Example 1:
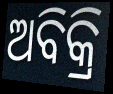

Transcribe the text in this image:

ଅବିକ୍ରି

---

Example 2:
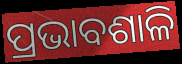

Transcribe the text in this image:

ପ୍ରଭାବଶାଳି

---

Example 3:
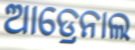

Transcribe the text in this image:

ଆଡ୍ରେନାଲ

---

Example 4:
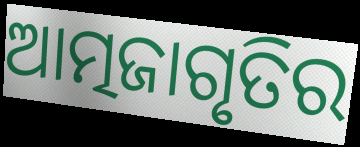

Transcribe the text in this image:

ଆତ୍ମଜାଗୃତିର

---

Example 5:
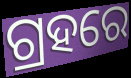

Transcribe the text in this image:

ଗ୍ରହରେ